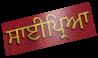
ਸਾਈਪ੍ਰਿਆ